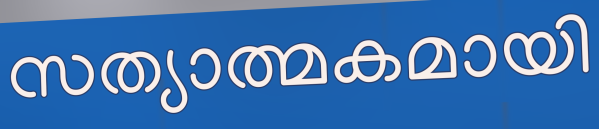
സത്യാത്മകമായി